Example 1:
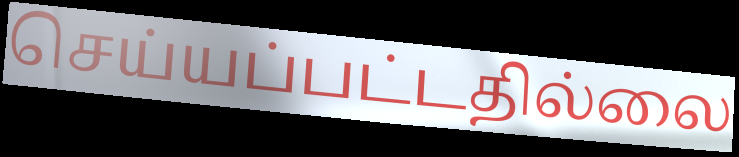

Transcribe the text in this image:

செய்யப்பட்டதில்லை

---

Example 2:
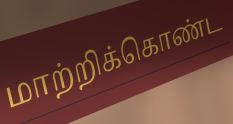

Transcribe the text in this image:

மாற்றிக்கொண்ட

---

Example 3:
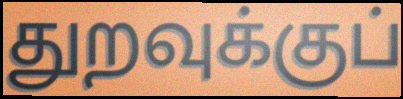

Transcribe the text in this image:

துறவுக்குப்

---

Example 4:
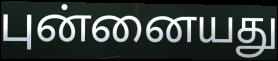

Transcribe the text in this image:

புன்னையது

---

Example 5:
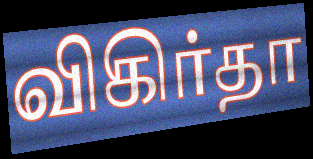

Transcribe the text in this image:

விகிர்தா